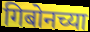
गिबोनच्या